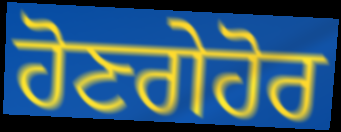
ਹੋਣਗੇਹੋਰ